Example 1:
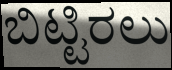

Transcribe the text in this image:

ಬಿಟ್ಟಿರಲು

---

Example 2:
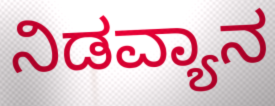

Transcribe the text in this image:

ನಿಡವ್ಯಾನ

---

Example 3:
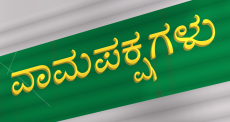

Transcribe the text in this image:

ವಾಮಪಕ್ಷಗಳು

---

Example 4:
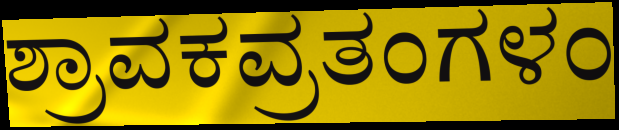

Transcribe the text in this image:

ಶ್ರಾವಕವ್ರತಂಗಳಂ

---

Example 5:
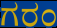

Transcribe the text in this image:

ಗರಂ